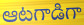
ఆటగాడిగా